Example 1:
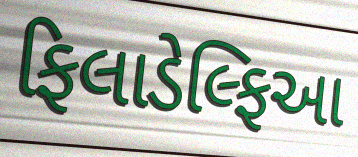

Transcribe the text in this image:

ફિલાડેલ્ફિઆ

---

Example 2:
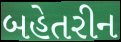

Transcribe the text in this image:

બહેતરીન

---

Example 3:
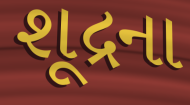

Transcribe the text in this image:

શૂદ્રના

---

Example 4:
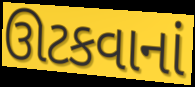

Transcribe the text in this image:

ઊટકવાનાં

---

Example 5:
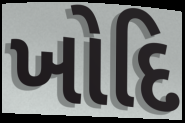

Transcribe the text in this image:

ખોદિ